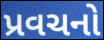
પ્રવચનો